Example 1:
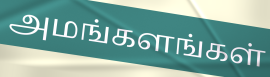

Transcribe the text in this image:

அமங்களங்கள்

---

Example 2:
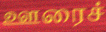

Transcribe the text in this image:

ஊரைச்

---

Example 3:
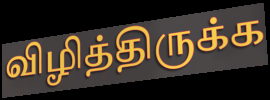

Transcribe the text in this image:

விழித்திருக்க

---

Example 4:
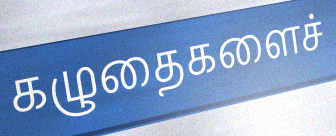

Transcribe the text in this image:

கழுதைகளைச்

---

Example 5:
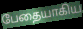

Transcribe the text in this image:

பேதையாகிய